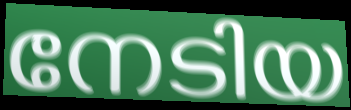
നേടിയ